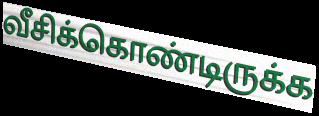
வீசிக்கொண்டிருக்க